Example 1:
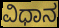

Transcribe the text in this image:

ವಿಧಾನ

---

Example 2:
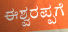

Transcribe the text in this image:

ಈಶ್ವರಪ್ಪಗೆ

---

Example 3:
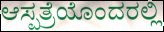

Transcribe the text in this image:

ಆಸ್ಪತ್ರೆಯೊಂದರಲ್ಲಿ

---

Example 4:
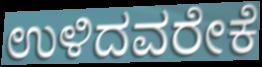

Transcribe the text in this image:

ಉಳಿದವರೇಕೆ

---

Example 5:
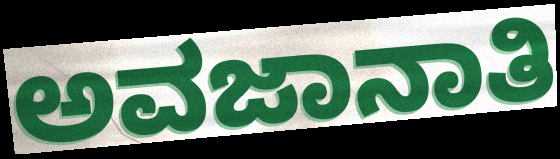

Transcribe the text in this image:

ಅವಜಾನಾತಿ